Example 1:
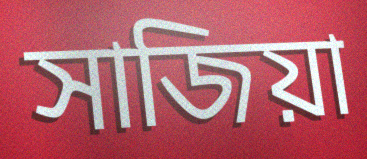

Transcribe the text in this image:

সাজিয়া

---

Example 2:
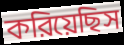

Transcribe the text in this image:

করিয়েছিস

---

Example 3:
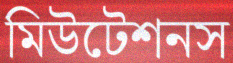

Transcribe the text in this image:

মিউটেশনস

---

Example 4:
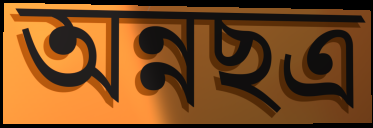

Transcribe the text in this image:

অন্নছত্র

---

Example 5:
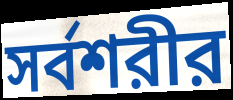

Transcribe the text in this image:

সর্বশরীর